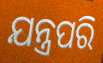
ଯନ୍ତ୍ରପରି